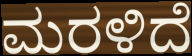
ಮರಳಿದೆ